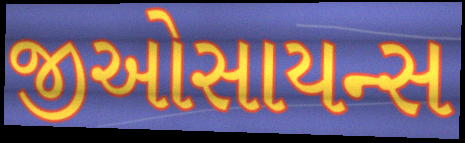
જીઓસાયન્સ